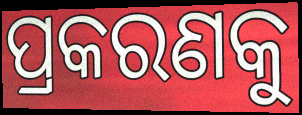
ପ୍ରକରଣକୁ